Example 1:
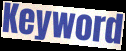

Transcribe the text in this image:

Keyword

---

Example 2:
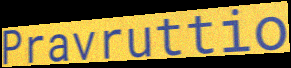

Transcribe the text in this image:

Pravruttio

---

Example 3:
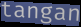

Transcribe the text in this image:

tangan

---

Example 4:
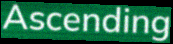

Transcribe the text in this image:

Ascending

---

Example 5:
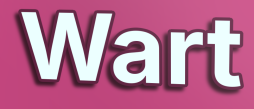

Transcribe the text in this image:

Wart